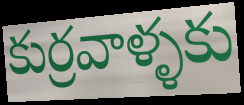
కుర్రవాళ్ళకు